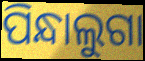
ପିନ୍ଧାଲୁଗା